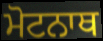
ਮੋਟਨਾਥ